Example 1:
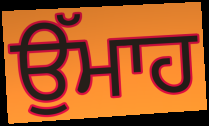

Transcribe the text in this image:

ਉੱਮਾਹ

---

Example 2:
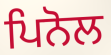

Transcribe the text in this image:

ਪਿਨੋਲ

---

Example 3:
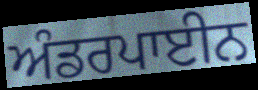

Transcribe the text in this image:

ਅੰਡਰਪਾਈਨ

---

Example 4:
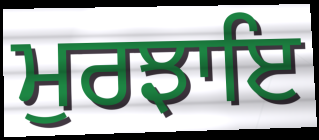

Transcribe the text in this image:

ਮੁਰਝਾਇ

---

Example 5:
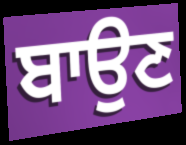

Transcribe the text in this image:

ਬਾਉਣ